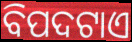
ବିପଦଟାଏ